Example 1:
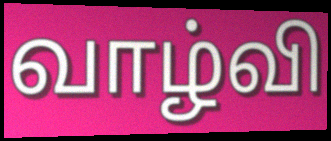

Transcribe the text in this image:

வாழ்வி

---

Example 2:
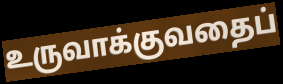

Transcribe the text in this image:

உருவாக்குவதைப்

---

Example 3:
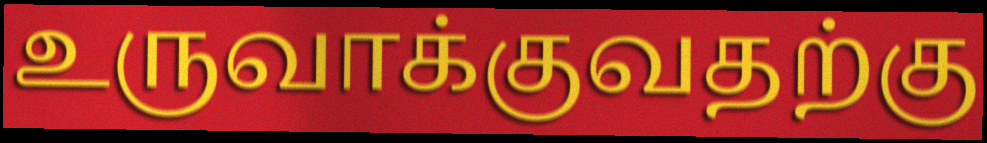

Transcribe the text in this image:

உருவாக்குவதற்கு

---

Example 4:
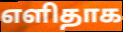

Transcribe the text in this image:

எளிதாக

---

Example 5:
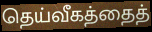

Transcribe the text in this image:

தெய்வீகத்தைத்